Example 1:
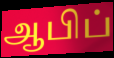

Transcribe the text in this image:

ஆபிப்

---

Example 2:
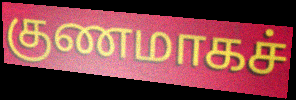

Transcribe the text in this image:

குணமாகச்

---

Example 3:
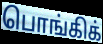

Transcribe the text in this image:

பொங்கிக்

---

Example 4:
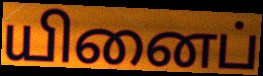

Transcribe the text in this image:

யினைப்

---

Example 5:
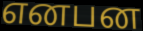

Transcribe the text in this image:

எனபன